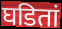
घडितां